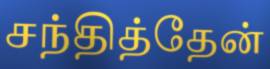
சந்தித்தேன்